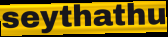
seythathu